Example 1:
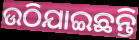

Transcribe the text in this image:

ଉଠିଯାଇଛନ୍ତି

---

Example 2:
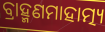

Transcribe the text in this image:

ବ୍ରାହ୍ମଣମାହାତ୍ମ୍ୟ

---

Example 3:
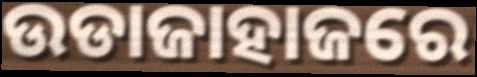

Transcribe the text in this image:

ଉଡାଜାହାଜରେ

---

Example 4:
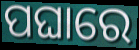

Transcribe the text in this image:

ପଘାରେ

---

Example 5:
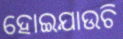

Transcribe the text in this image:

ହୋଇଯାଉଚି